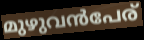
മുഴുവൻപേര്